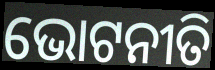
ଭୋଟନୀତି